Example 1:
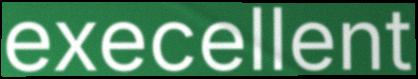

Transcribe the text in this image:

execellent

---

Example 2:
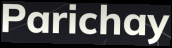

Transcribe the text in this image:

Parichay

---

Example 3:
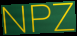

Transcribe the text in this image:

NPZ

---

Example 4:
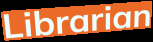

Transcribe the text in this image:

Librarian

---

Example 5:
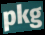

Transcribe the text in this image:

pkg